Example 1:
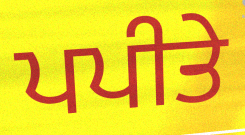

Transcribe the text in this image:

ਪਪੀਤੇ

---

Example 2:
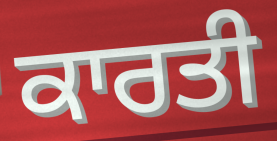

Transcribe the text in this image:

ਕਾਰਤੀ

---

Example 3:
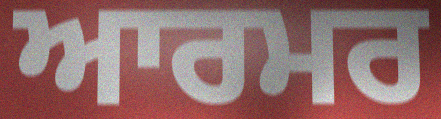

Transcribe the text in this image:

ਆਰਮਰ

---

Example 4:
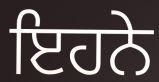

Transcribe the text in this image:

ਇਹਨੇ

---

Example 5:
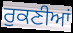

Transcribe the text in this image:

ਰੁਕਣੀਆਂ